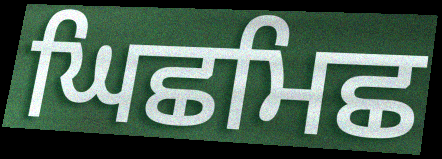
ਘਿਛਮਿਛ